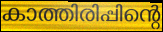
കാത്തിരിപ്പിന്റെ